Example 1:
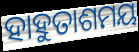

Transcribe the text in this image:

ହାହୁତାଶମୟ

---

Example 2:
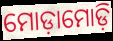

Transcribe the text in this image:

ମୋଡ଼ାମୋଡ଼ି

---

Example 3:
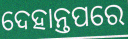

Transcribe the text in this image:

ଦେହାନ୍ତପରେ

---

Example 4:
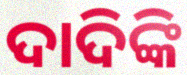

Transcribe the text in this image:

ଦାଦିଙ୍କି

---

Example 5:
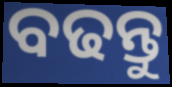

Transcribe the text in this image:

ବଢନ୍ତୁ